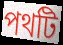
পথটি